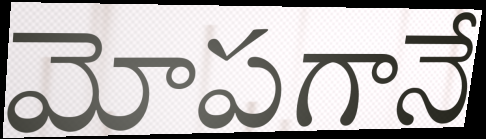
మోపగానే